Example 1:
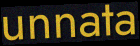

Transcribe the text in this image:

unnata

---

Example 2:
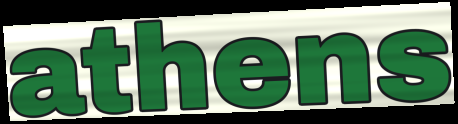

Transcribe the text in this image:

athens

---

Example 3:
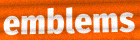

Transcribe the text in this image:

emblems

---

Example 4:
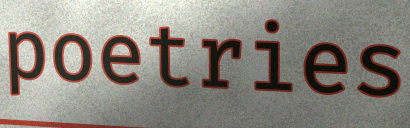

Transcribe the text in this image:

poetries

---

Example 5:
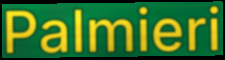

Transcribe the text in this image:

Palmieri